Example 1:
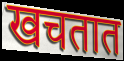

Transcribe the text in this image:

खचतात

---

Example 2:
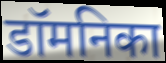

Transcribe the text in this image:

डॉमनिका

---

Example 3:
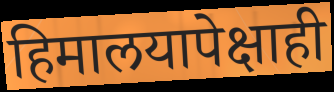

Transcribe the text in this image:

हिमालयापेक्षाही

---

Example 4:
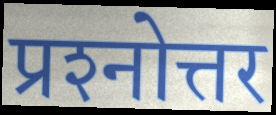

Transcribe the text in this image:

प्रश्नोत्तर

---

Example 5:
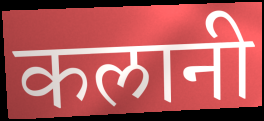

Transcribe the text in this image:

कलानी